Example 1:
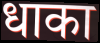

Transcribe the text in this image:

धाका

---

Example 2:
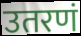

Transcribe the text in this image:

उतरणं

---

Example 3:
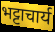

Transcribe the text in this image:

भट्टाचार्य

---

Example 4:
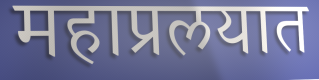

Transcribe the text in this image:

महाप्रलयात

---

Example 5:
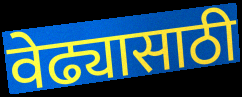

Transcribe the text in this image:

वेढ्यासाठी